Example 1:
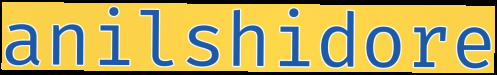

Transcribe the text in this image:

anilshidore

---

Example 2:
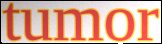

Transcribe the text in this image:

tumor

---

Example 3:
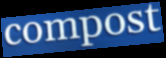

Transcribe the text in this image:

compost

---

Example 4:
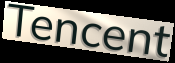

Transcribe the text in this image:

Tencent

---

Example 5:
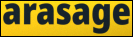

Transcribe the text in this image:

arasage